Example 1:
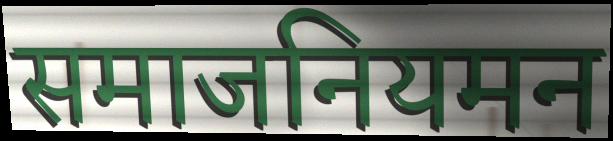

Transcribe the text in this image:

समाजनियमन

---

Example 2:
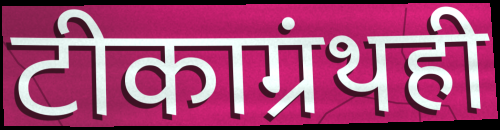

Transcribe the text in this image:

टीकाग्रंथही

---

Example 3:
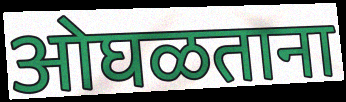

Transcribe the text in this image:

ओघळताना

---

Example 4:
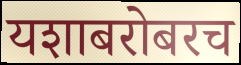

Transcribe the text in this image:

यशाबरोबरच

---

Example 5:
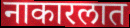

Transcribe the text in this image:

नाकारलात